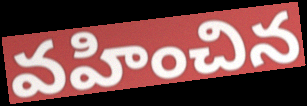
వహించిన